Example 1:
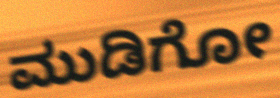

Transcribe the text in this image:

ಮುಡಿಗೋ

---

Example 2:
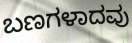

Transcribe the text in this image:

ಬಣಗಳಾದವು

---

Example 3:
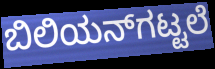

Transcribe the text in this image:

ಬಿಲಿಯನ್‌ಗಟ್ಟಲೆ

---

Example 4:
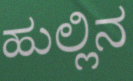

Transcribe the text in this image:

ಹುಲ್ಲಿನ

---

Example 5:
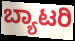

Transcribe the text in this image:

ಬ್ಯಾಟರಿ